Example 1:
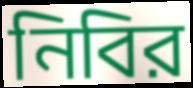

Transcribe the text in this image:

নিবির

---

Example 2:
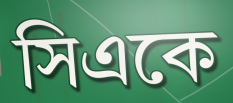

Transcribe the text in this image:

সিএকে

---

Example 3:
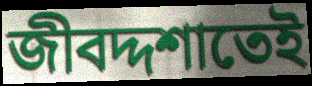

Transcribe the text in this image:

জীবদ্দশাতেই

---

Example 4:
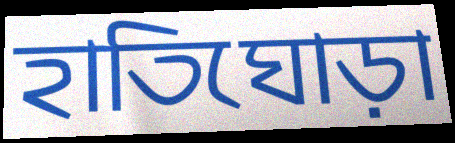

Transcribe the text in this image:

হাতিঘোড়া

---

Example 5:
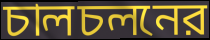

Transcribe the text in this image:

চালচলনের